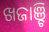
ଖଜାଞ୍ଚି